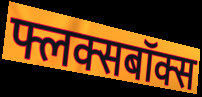
फ्लक्सबॉक्स